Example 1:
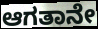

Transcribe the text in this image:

ಆಗತಾನೇ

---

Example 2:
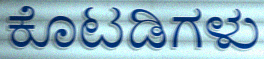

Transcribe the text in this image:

ಕೊಟಡಿಗಳು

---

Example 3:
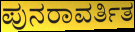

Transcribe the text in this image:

ಪುನರಾವರ್ತಿತ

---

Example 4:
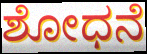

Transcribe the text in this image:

ಶೋಧನೆ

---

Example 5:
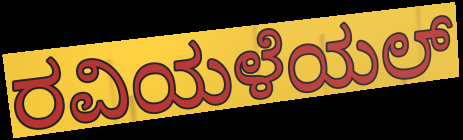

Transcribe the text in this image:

ರವಿಯಳೆಯಲ್